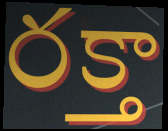
రక్తా